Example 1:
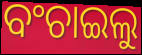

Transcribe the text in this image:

ବଂଚାଇଲୁ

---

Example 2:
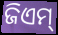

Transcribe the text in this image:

ଜିଏମ୍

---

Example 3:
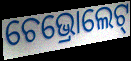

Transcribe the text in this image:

ଚେଭ୍ରୋଲେଟ୍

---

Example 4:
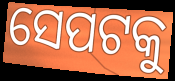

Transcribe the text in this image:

ସେପଟକୁ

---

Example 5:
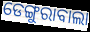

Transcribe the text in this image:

ଡେଙ୍ଗୁରାବାଲା